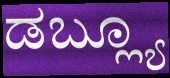
ಡಬ್ಲ್ಯೂ